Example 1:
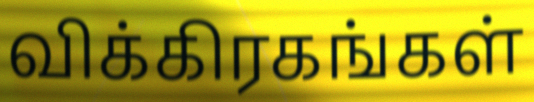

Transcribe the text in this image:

விக்கிரகங்கள்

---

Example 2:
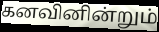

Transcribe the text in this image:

கனவினின்றும்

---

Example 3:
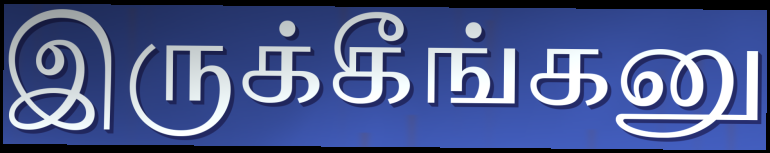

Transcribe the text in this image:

இருக்கீங்கனு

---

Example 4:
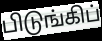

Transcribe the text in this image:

பிடுங்கிப்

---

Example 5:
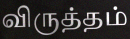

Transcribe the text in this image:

விருத்தம்